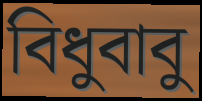
বিধুবাবু